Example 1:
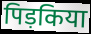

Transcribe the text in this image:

पिड़किया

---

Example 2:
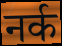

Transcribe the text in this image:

नर्क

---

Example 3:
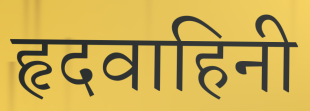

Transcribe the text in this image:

हृदवाहिनी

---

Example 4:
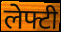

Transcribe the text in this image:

लेफ्टी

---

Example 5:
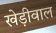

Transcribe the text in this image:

खेड़ीवाल